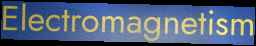
Electromagnetism